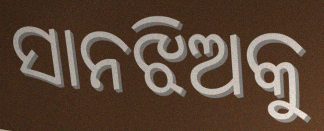
ସାନଝିଅକୁ